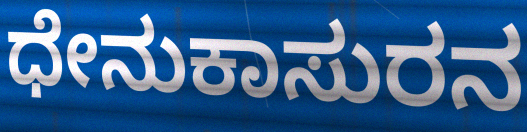
ಧೇನುಕಾಸುರನ